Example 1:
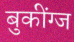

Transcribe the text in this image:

बुकींग्ज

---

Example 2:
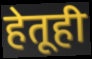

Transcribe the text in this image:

हेतूही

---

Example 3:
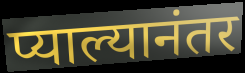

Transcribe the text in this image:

प्याल्यानंतर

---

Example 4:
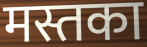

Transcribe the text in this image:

मस्तका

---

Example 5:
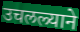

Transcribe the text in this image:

उचलल्याने